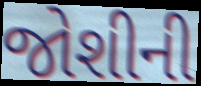
જોશીની